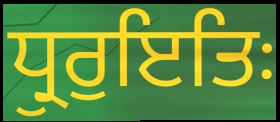
ਧ੍ਰੁਰੁਇਤਿਃ